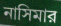
নাসিমার